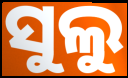
ସୁଲୁ